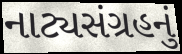
નાટ્યસંગ્રહનું